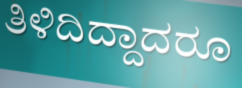
ತಿಳಿದಿದ್ದಾದರೂ